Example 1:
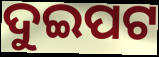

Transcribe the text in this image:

ଦୁଇପଟ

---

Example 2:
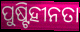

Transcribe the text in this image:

ପୁଷ୍ଟିହୀନତା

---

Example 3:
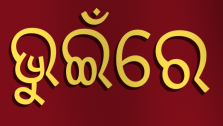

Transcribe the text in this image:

ଭୁଇଁରେ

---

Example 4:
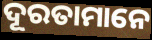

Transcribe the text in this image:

ଦୂରତାମାନେ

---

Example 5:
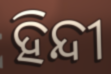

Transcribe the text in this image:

ହିନ୍ଦୀ